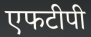
एफटीपी